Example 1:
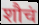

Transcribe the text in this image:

शौचं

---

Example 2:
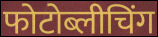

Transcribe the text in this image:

फोटोब्लीचिंग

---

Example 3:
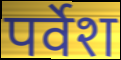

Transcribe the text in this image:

पर्वेश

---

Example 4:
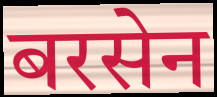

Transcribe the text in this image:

बरसेन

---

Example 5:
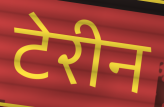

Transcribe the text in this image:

टेरीन